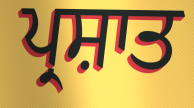
ਪ੍ਰਸ਼ਾਤ